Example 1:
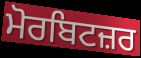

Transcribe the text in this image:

ਮੋਰਬਿਟਜ਼ਰ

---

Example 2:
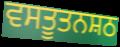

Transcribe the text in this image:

ਵਸਤੂਤਨਸ਼ਠ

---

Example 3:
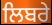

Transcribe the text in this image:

ਲਿਬਰੇ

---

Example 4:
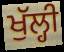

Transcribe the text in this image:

ਖੁੱਲ੍ਹੀ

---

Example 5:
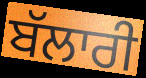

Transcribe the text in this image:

ਬੱਲਾਰੀ